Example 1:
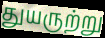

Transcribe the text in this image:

துயருற்று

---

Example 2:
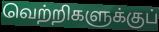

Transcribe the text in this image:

வெற்றிகளுக்குப்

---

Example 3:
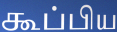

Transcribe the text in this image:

கூப்பிய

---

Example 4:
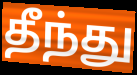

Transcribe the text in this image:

தீந்து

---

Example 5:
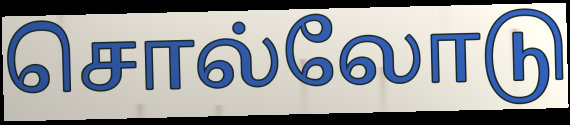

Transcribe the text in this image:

சொல்லோடு